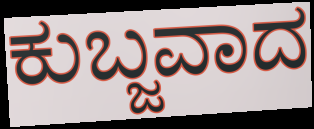
ಕುಬ್ಜವಾದ